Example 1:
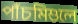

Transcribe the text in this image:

পাঁচমিশুলে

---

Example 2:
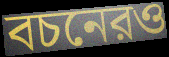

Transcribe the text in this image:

বচনেরও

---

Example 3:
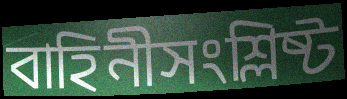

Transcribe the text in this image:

বাহিনীসংশ্লিষ্ট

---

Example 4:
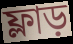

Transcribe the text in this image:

ফ্লাড়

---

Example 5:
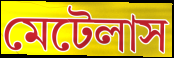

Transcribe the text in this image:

মেটেলাস